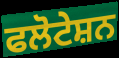
ਫਲੋਟੇਸ਼ਨ